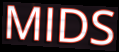
MIDS